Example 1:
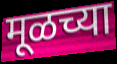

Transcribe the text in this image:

मूळच्या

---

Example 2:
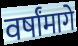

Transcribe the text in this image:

वर्षांमागे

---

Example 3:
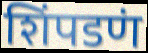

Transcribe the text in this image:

शिंपडणं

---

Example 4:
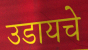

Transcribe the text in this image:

उडायचे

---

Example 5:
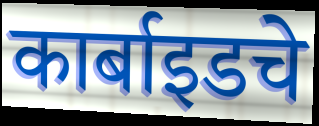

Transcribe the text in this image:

कार्बाइडचे